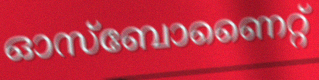
ഓസ്ബോണൈറ്റ്